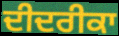
ਦੀਦਰੀਕਾ